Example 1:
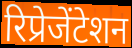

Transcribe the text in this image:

रिप्रेजेंटेशन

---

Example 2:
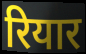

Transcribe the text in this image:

रियार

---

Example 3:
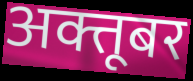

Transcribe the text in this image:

अक्तूबर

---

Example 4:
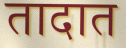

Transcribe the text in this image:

तादात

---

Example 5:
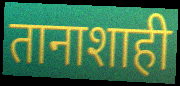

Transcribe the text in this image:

तानाशाही